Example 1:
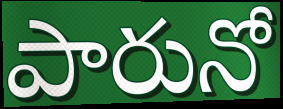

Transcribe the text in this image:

పారునో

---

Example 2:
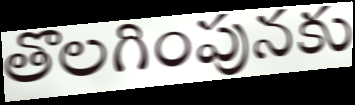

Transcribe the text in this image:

తొలగింపునకు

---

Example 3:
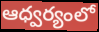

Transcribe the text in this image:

ఆధ్వర్యంలో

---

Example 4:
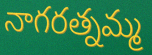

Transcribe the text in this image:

నాగరత్నమ్మ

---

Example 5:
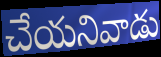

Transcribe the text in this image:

చేయనివాడు